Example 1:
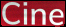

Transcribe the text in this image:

Cine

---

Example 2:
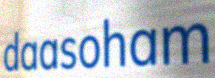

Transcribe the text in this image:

daasoham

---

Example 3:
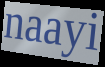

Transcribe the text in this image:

naayi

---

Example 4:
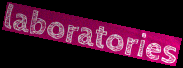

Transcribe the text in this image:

laboratories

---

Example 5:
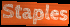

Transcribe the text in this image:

Staples